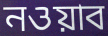
নওয়াব